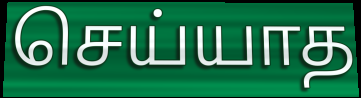
செய்யாத